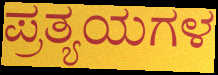
ಪ್ರತ್ಯಯಗಳ